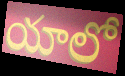
యాలో